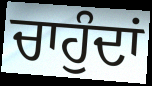
ਚਾਹੁੰਦਾਂ